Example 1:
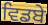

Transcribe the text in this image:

ਵਿਡਬੇ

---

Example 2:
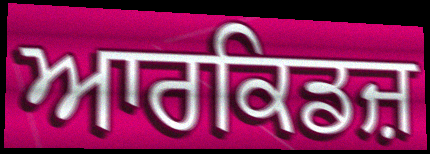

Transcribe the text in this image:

ਆਰਕਿਡਜ਼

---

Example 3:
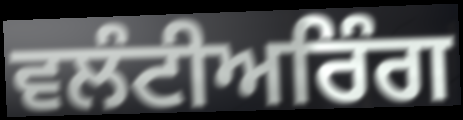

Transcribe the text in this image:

ਵਲੰਟੀਅਰਿੰਗ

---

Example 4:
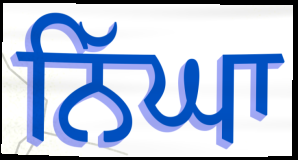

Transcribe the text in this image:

ਨਿੱਘਾ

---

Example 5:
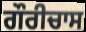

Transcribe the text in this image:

ਗੌਰੀਚਾਸ